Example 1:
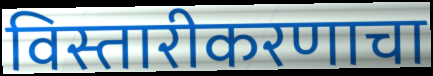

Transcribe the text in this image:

विस्तारीकरणाचा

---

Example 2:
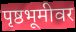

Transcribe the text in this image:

पृष्ठभूमीवर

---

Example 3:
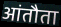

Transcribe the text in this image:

आंतौता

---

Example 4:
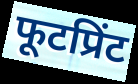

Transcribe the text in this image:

फूटप्रिंट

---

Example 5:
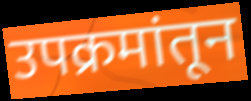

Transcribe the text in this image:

उपक्रमांतून